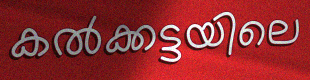
കൽക്കട്ടയിലെ